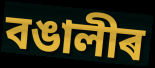
বঙালীৰ